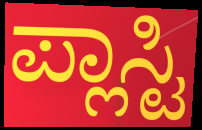
ಪ್ಲಾಸ್ಟಿ